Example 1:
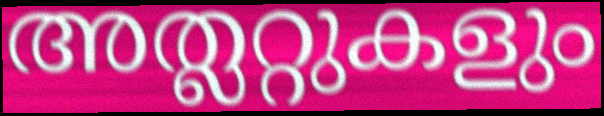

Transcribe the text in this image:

അത്ലറ്റുകളും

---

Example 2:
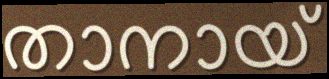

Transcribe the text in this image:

താനായ്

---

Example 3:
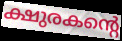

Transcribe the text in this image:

ക്ഷുരകന്റെ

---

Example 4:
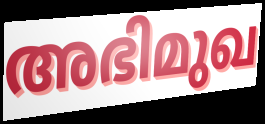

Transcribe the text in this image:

അഭിമുഖ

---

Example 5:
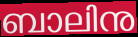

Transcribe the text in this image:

ബാലിനു